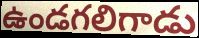
ఉండగలిగాడు